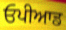
ਓਪੀਆਡ